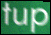
tup